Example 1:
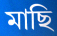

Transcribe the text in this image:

মাছি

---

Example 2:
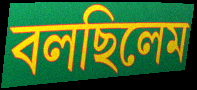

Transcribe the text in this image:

বলছিলেম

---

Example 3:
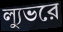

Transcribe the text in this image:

ল্যুভরে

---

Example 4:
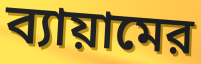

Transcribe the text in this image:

ব্যায়ামের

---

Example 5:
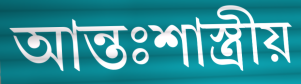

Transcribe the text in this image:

আন্তঃশাস্ত্রীয়